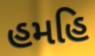
હમહિ